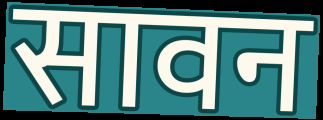
सावन